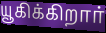
யூகிக்கிறார்